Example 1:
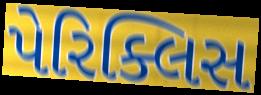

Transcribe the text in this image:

પેરિક્લિસ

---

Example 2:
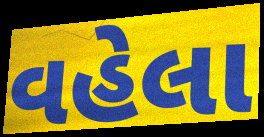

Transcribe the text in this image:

વહેલા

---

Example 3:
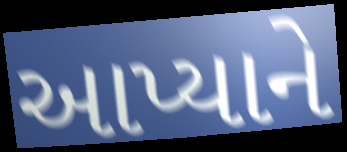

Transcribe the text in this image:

આપ્યાને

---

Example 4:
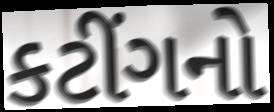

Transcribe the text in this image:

કટીંગનો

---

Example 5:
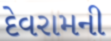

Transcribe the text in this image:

દેવરામની